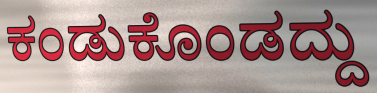
ಕಂಡುಕೊಂಡದ್ದು